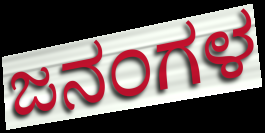
ಜನಂಗಳ